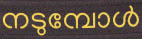
നടുമ്പോൾ